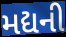
મદ્યની